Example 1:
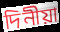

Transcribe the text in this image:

দিনীয়া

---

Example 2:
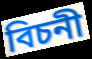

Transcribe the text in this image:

বিচনী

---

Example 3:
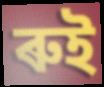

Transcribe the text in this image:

ৰুই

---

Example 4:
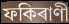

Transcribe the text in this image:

ফকিৰাণী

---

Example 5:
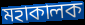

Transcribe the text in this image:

মহাকালক